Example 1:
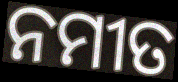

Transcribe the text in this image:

ନମୀତ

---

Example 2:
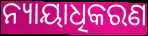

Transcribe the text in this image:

ନ୍ୟାୟାଧିକରଣ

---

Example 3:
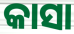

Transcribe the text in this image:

କାସା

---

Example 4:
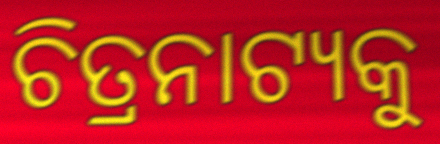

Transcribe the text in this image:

ଚିତ୍ରନାଟ୍ୟକୁ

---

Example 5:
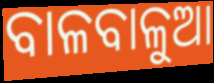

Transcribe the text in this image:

ବାଳବାଳୁଆ